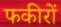
फकीरों